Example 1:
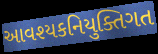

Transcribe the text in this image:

આવશ્યકનિયુક્તિગત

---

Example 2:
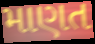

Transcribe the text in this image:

માણત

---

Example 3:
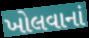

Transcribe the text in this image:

ખોલવાનાં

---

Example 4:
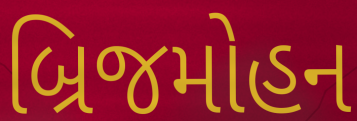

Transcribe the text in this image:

બ્રિજમોહન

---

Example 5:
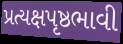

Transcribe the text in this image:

પ્રત્યક્ષપૃષ્ઠભાવી